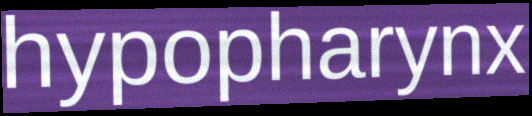
hypopharynx